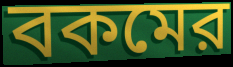
বকমের